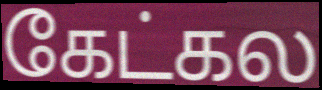
கேட்கல